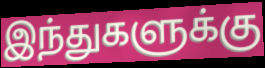
இந்துகளுக்கு